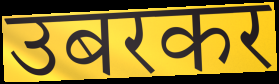
उबरकर